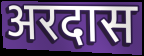
अरदास